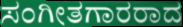
ಸಂಗೀತಗಾರರಾದ